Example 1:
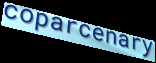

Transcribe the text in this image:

coparcenary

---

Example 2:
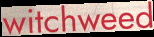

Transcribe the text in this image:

witchweed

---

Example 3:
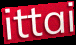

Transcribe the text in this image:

ittai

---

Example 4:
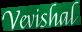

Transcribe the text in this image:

Vevishal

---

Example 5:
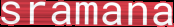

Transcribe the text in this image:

sramana